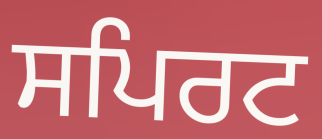
ਸਪਿਰਟ